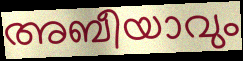
അബീയാവും